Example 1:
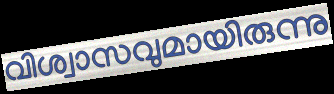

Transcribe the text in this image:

വിശ്വാസവുമായിരുന്നു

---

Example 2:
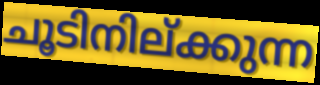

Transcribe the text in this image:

ചൂടിനില്ക്കുന്ന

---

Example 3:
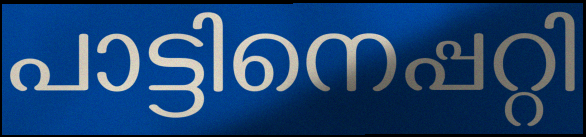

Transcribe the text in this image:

പാട്ടിനെപ്പറ്റി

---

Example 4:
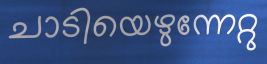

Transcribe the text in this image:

ചാടിയെഴുന്നേറ്റു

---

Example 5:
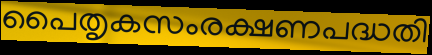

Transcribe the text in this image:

പൈതൃകസംരക്ഷണപദ്ധതി